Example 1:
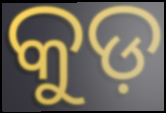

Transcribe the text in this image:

କୁଡ଼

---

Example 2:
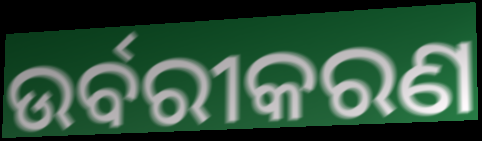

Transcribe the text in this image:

ଉର୍ବରୀକରଣ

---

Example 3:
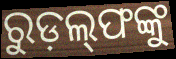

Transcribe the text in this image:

ରୁଡ଼ଲ୍‍ଫଙ୍କୁ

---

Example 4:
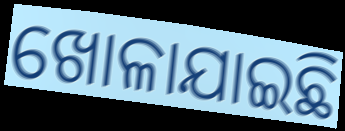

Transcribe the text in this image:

ଖୋଳାଯାଇଛି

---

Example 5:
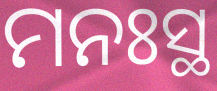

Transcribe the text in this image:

ମନଃସ୍ଥ